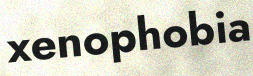
xenophobia